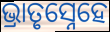
ଭ୍ରାତୃସ୍ନେହେ